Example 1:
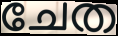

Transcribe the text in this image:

ചേത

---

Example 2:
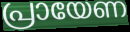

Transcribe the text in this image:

പ്രായേണ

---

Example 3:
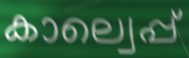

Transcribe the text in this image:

കാല്വെപ്പ്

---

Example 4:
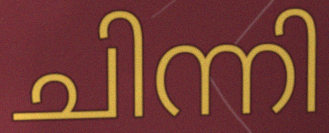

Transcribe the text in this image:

ചിന്നി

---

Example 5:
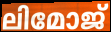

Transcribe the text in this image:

ലിമോജ്